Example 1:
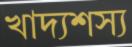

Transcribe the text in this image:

খাদ্যশস্য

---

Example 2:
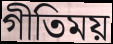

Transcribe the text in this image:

গীতিময়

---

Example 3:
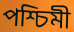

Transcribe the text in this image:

পশ্চিমী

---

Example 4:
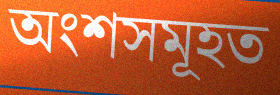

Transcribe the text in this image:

অংশসমূহত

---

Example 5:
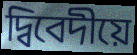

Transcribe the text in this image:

দ্বিবেদীয়ে